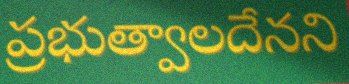
ప్రభుత్వాలదేనని